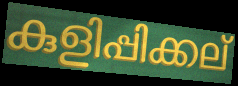
കുളിപ്പിക്കല്